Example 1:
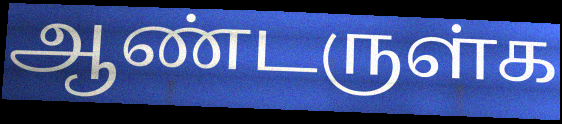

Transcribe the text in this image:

ஆண்டருள்க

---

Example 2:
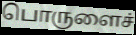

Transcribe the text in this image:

பொருளைச்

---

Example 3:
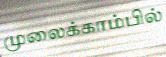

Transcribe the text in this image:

முலைக்காம்பில்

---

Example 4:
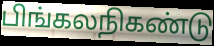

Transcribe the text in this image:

பிங்கலநிகண்டு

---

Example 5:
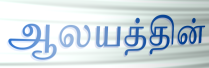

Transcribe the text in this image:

ஆலயத்தின்